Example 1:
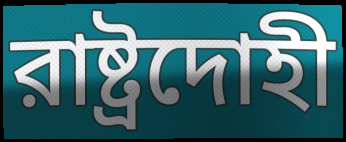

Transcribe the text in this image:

রাষ্ট্রদোহী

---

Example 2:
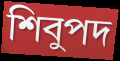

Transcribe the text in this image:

শিবুপদ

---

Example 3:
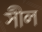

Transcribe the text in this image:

সীল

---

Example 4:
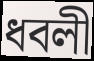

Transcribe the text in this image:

ধবলী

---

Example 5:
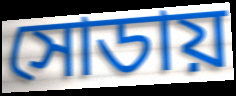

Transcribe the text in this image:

সোডায়